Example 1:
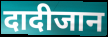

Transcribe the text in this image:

दादीजान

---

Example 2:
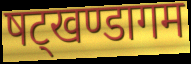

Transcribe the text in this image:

षट्खण्डागम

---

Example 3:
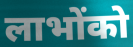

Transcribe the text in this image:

लाभोंको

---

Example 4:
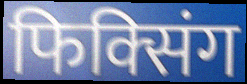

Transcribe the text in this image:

फिक्‍सिंग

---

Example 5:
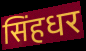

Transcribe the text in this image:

सिंहधर